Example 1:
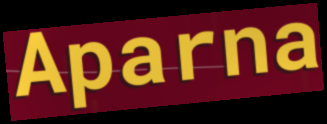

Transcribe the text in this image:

Aparna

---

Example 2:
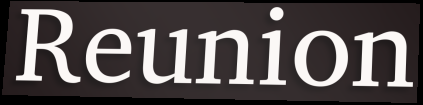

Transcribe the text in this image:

Reunion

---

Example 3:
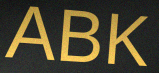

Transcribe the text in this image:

ABK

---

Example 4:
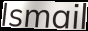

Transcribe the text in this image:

Ismail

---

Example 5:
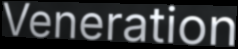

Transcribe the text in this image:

Veneration